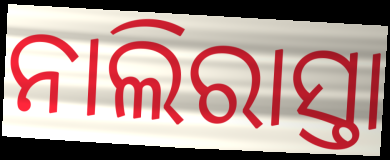
ନାଲିରାସ୍ତା